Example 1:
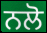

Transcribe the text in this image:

ਨਲੋ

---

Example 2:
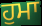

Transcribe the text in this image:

ਹੁਮਾ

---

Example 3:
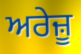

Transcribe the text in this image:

ਅਰੇਜ਼ੂ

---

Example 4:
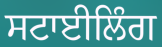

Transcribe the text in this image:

ਸਟਾਈਲਿੰਗ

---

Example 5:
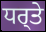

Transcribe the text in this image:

ਧਰ੍ਤੇ